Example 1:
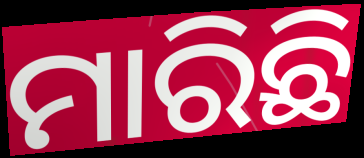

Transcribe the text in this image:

ମାରିଛି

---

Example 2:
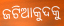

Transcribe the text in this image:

ଜଟିଆକୁଦକୁ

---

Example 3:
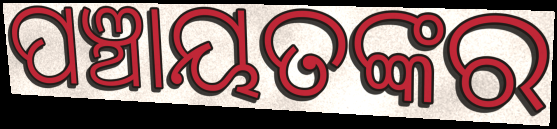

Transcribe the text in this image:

ପଞ୍ଚାୟତଙ୍କର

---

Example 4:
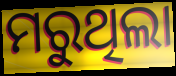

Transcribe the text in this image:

ମରୁଥିଲା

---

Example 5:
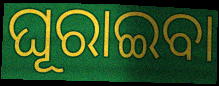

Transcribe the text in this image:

ଘୂରାଇବା